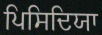
ਪਿਸਿਦਿਯਾ